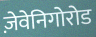
ज़ेवेनिगोरोड